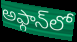
అఫ్గాన్‌లో